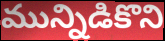
మున్నిడికొని